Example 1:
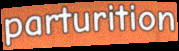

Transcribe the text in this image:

parturition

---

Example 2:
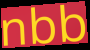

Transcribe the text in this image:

nbb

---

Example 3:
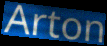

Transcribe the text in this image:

Arton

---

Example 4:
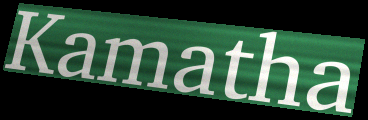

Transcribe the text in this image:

Kamatha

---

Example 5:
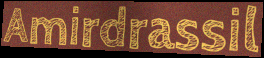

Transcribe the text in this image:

Amirdrassil